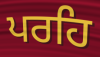
ਪਰਹਿ